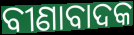
ବୀଣାବାଦକ